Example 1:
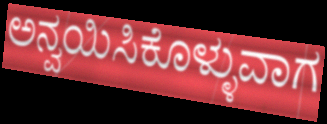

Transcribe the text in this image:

ಅನ್ವಯಿಸಿಕೊಳ್ಳುವಾಗ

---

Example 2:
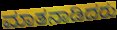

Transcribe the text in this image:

ಮಾತನಾಡಿದರು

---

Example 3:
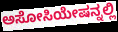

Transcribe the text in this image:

ಅಸೋಸಿಯೇಷನ್ನಲ್ಲಿ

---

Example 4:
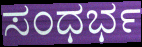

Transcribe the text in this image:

ಸಂಧರ್ಭ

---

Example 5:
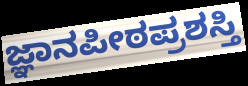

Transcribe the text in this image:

ಜ್ಞಾನಪೀಠಪ್ರಶಸ್ತಿ